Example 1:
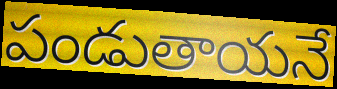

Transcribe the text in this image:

పండుతాయనే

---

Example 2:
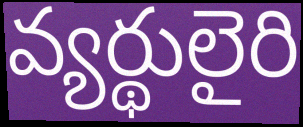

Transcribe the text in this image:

వ్యర్థులైరి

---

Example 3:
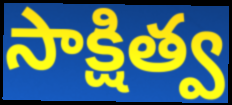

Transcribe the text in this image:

సాక్షిత్వ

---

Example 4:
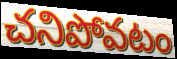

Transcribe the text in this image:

చనిపోవటం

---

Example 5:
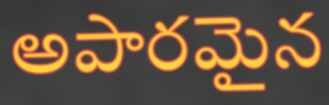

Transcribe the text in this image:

అపారమైన